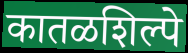
कातळशिल्पे